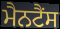
ਮੈਨਟੈਂਸ